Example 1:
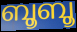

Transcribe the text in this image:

ബൂബൂ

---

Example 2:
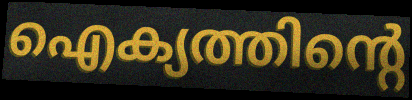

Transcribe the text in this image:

ഐക്യത്തിന്റെ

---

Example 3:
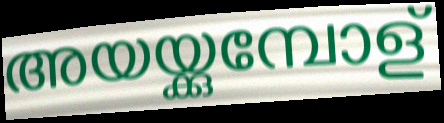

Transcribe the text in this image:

അയയ്ക്കുമ്പോള്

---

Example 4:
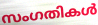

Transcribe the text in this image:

സംഗതികൾ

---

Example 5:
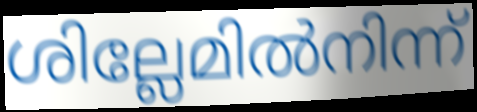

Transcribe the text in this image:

ശില്ലേമിൽനിന്ന്